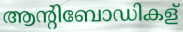
ആന്റിബോഡികള്